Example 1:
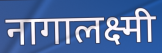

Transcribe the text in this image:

नागालक्ष्मी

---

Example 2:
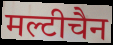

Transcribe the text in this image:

मल्टीचैन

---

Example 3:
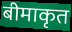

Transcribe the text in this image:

बीमाकृत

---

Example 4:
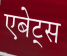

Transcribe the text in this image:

एबेट्स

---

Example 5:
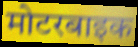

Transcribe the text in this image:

मोटरबाइक